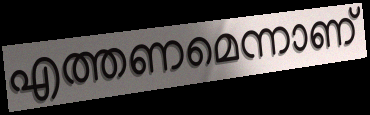
എത്തണമെന്നാണ്